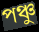
পঞ্চু